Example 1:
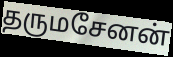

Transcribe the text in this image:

தருமசேனன்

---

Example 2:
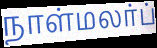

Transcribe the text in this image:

நாள்மலர்ப்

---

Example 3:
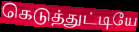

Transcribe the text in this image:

கெடுத்துட்டியே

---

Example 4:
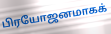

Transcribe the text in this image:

பிரயோஜனமாகக்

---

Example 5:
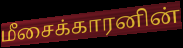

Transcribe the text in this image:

மீசைக்காரனின்